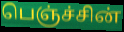
பெஞ்ச்சின்